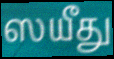
ஸயீது